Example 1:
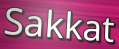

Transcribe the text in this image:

Sakkat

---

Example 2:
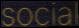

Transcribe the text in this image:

social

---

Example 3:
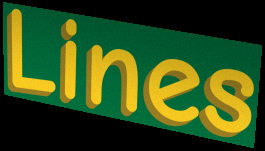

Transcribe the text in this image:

Lines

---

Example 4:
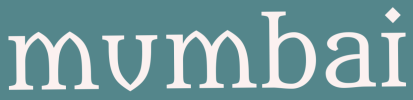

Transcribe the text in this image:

mumbai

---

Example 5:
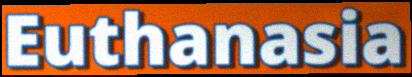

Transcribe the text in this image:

Euthanasia